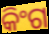
କିଂଗ